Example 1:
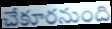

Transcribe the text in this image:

చేకూరనుంది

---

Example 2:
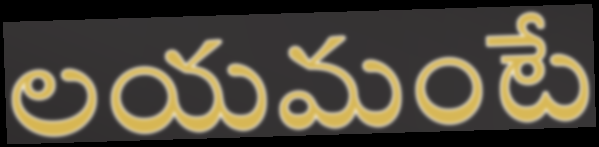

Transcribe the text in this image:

లయమంటే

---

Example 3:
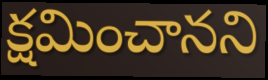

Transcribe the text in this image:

క్షమించానని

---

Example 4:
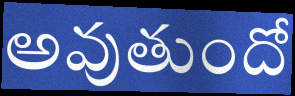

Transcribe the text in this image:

అవుతుందో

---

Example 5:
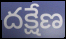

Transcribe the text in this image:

దక్షేణ